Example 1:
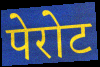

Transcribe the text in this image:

पेरोट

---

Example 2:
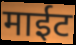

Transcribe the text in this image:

माईट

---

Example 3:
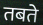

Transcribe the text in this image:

तबते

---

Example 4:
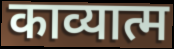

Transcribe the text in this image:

काव्यात्म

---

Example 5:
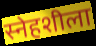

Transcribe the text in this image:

स्नेहशीला